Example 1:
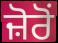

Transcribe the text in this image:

ਜ਼ੋਰੋਂ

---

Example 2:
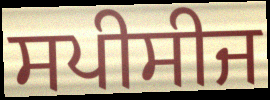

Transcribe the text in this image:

ਸਪੀਸੀਜ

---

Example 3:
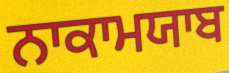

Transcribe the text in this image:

ਨਾਕਾਮਯਾਬ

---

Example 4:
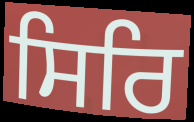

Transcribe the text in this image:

ਸਿਰਿ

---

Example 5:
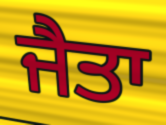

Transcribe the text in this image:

ਜੈਤਾ